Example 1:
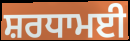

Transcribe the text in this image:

ਸ਼ਰਧਾਮਈ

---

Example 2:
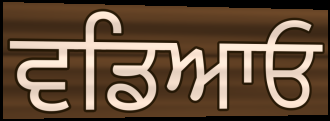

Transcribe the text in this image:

ਵਡਿਆਓ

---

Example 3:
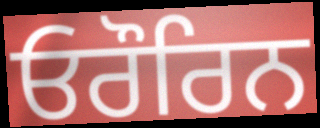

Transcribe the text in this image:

ਓਰੌਰਿਨ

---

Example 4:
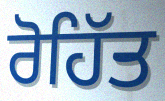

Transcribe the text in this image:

ਰੋਹਿੱਤ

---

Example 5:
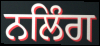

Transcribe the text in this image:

ਨਲਿੰਗ